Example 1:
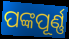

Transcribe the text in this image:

ପଙ୍କପୂର୍ଣ୍ଣ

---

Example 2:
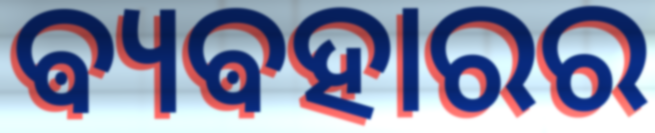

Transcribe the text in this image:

ଵ୍ୟଵହାରର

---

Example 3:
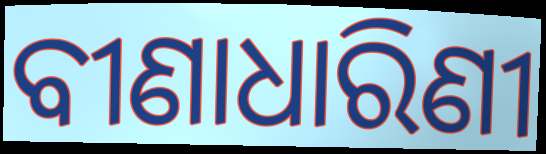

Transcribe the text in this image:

ବୀଣାଧାରିଣୀ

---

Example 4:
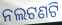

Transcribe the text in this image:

ନଲଟଣଟି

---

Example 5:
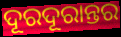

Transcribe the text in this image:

ଦୂରଦୂରାନ୍ତର